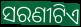
ସରଣୀଟିଏ